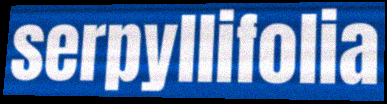
serpyllifolia